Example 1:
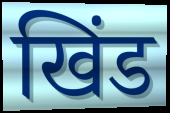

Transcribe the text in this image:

खिंड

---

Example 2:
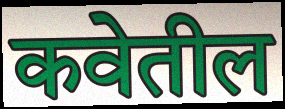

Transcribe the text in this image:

कवेतील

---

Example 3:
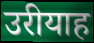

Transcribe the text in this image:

उरीयाह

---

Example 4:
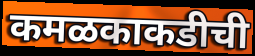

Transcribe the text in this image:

कमळकाकडीची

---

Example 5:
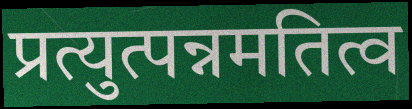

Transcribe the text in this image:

प्रत्युत्पन्नमतित्व